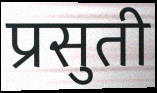
प्रसुती